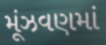
મૂંઝવણમાં